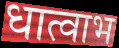
धात्वाभ